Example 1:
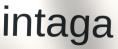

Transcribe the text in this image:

intaga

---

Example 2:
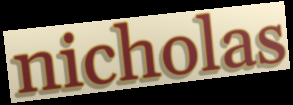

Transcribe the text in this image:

nicholas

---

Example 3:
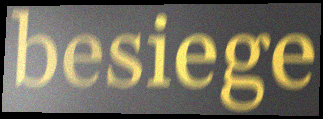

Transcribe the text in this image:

besiege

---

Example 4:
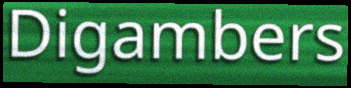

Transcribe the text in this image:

Digambers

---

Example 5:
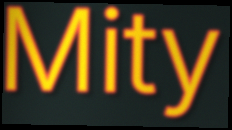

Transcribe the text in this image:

Mity